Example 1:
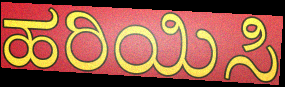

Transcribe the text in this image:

ಹರಿಯಿಸಿ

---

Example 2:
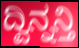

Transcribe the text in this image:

ದ್ವಿನ್ನನ್ತಿ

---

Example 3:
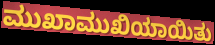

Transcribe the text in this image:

ಮುಖಾಮುಖಿಯಾಯಿತು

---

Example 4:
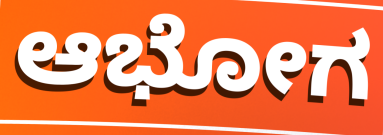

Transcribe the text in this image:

ಆಭೋಗ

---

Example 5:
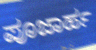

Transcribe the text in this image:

ಪೂಜಾರ್ಹ